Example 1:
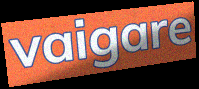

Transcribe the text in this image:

vaigare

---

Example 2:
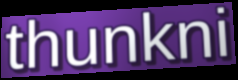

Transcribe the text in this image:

thunkni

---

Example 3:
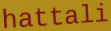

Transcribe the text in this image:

hattali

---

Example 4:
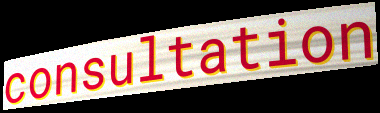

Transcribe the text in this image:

consultation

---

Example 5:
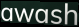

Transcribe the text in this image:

awash